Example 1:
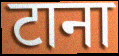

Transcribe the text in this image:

टाना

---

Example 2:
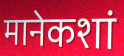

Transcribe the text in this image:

मानेकशां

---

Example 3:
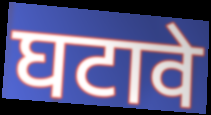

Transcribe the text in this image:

घटावे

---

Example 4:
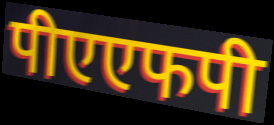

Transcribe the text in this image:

पीएएफपी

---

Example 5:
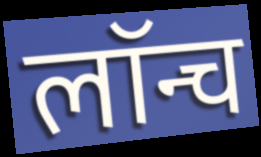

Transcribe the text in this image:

लॉन्च